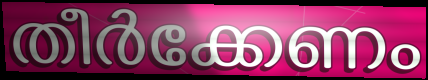
തീർക്കേണം